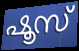
ഷൂസ്